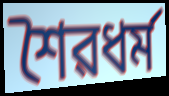
শৈৱধৰ্ম